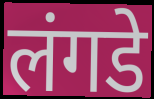
लंगडे